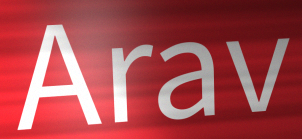
Arav